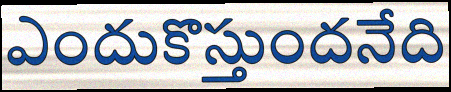
ఎందుకొస్తుందనేది